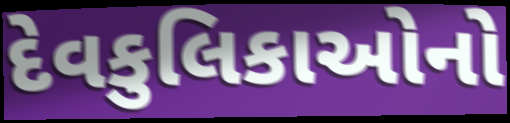
દેવકુલિકાઓનો